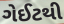
ગેઈટથી